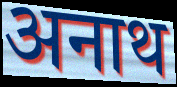
अनाथ